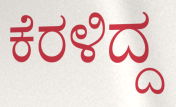
ಕೆರಳಿದ್ದ